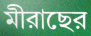
মীরাছের